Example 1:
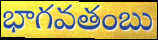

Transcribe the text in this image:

భాగవతంబు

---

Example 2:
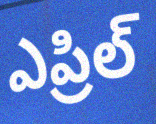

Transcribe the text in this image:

ఎప్రిల్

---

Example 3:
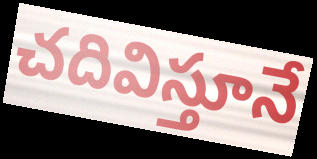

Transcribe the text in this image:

చదివిస్తూనే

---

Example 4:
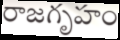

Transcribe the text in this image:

రాజగృహం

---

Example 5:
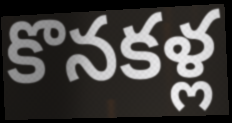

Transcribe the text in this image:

కొనకళ్ల